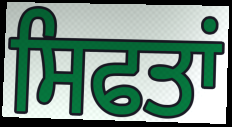
ਸਿਫਤਾਂ